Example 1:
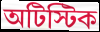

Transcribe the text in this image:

অটিস্টিক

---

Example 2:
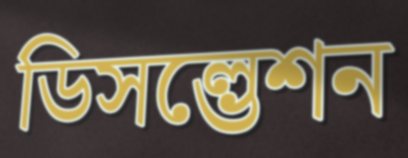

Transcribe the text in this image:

ডিসল্ভেশন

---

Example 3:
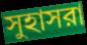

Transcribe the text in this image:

সুহাসরা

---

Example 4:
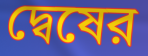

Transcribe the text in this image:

দ্বেষের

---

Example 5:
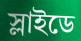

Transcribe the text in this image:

স্লাইডে